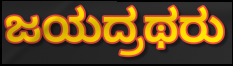
ಜಯದ್ರಥರು